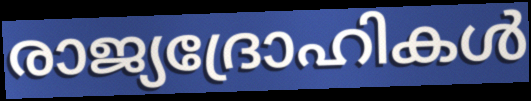
രാജ്യദ്രോഹികൾ